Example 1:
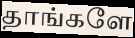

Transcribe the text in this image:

தாங்களே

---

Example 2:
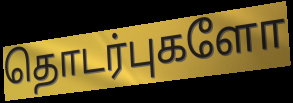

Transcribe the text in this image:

தொடர்புகளோ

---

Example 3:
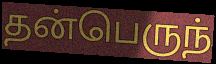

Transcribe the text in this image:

தன்பெருந்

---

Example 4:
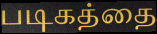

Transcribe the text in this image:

படிகத்தை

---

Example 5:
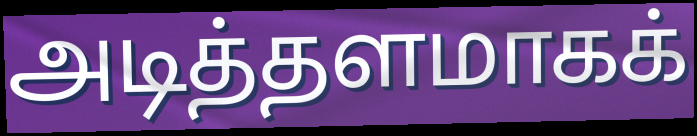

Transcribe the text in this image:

அடித்தளமாகக்